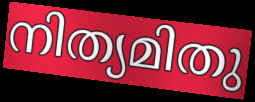
നിത്യമിതു